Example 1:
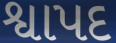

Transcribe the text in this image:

શ્વાપદ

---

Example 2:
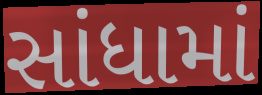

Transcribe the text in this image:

સાંધામાં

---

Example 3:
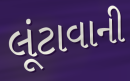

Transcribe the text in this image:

લૂંટાવાની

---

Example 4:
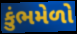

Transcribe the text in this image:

કુંભમેળો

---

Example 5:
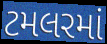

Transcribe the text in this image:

ટમલરમાં